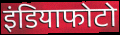
इंडियाफोटो